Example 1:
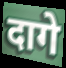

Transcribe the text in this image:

दागे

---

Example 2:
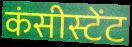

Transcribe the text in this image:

कंसीस्टेंट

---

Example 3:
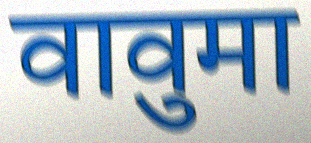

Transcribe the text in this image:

वावुमा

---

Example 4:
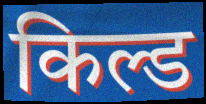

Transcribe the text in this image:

किल्ड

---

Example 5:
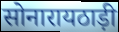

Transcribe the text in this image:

सोनारायठाड़ी